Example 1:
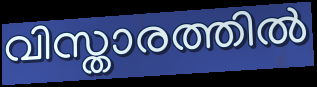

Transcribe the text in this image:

വിസ്താരത്തിൽ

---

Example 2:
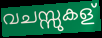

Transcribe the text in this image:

വചസ്സുകള്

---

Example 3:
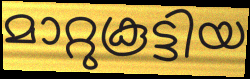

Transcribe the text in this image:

മാറ്റുകൂട്ടിയ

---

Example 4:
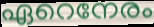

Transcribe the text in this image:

ഏറെനേരം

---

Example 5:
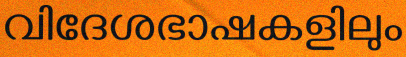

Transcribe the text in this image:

വിദേശഭാഷകളിലും